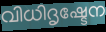
വിധിദൃഷ്ടേന